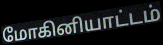
மோகினியாட்டம்